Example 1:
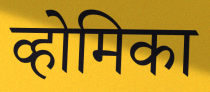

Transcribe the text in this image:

व्होमिका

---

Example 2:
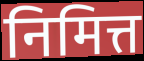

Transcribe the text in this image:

निमित्त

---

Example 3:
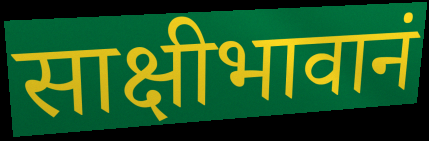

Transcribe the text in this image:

साक्षीभावानं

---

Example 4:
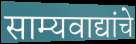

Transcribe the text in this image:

साम्यवाद्यांचे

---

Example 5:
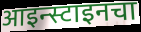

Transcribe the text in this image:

आइन्स्टाइनचा